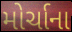
મોર્ચાના